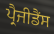
ਪ੍ਰੈਜੀਡੈਂਸ